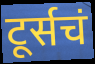
टूर्सचं